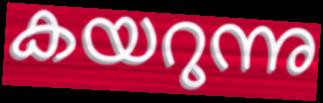
കയറുന്നു